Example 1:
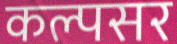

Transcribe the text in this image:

कल्पसर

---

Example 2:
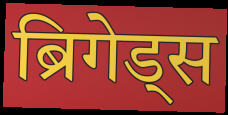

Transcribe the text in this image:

ब्रिगेड्स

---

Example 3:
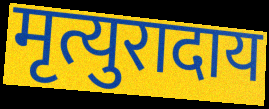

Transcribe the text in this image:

मृत्युरादाय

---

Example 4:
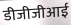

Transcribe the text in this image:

डीजीजीआई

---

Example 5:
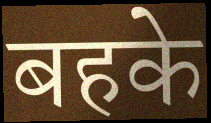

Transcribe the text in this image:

बहके